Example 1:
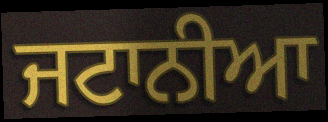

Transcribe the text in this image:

ਜਟਾਨੀਆ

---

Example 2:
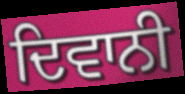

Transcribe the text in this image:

ਦਿਵਾਨੀ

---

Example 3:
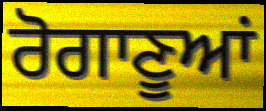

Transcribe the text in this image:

ਰੋਗਾਣੂਆਂ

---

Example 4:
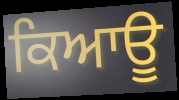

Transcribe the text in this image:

ਕਿਆਊ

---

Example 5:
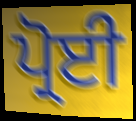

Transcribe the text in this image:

ਪ੍ਰੋਈ